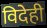
विदेही